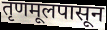
तृणमूलपासून